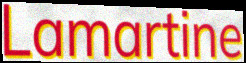
Lamartine